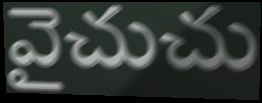
వైచుచు